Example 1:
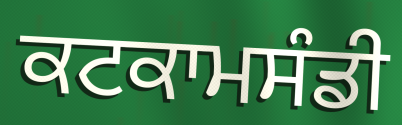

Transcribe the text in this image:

ਕਟਕਾਮਸੰਡੀ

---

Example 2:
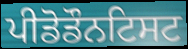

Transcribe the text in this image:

ਪੀਡੋਡੌਨਟਿਸਟ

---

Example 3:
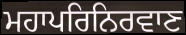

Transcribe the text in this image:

ਮਹਾਪਰਿਨਿਰਵਾਣ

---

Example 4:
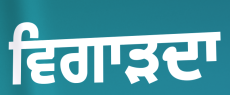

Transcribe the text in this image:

ਵਿਗਾੜਦਾ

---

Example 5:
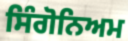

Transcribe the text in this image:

ਸਿੰਗੋਨਿਅਮ